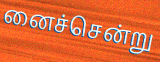
னைச்சென்று